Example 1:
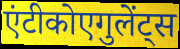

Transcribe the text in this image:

एंटीकोएगुलेंट्स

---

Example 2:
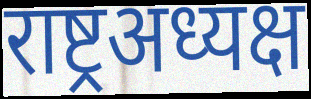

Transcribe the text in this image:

राष्ट्रअध्यक्ष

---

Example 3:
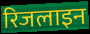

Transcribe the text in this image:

रिजलाइन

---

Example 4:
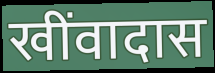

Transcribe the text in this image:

खींवादास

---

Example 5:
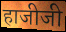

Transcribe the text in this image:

हाजीजी